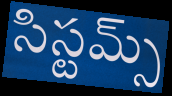
సిస్టమ్స్